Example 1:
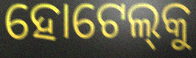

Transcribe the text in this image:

ହୋଟେଲ୍‌କୁ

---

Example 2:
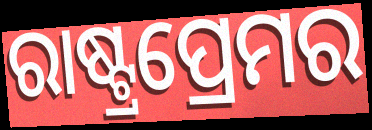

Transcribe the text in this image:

ରାଷ୍ଟ୍ରପ୍ରେମର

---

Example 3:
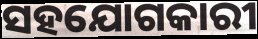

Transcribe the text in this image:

ସହଯୋଗକାରୀ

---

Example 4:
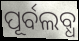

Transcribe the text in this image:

ପୂର୍ବଲବ୍ଧ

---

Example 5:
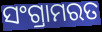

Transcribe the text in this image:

ସଂଗ୍ରାମରତ